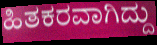
ಹಿತಕರವಾಗಿದ್ದು